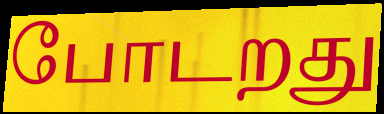
போடறது